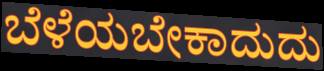
ಬೆಳೆಯಬೇಕಾದುದು